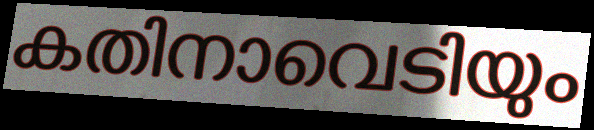
കതിനാവെടിയും